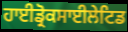
ਹਾਈਡ੍ਰੋਕਸਾਈਲੇਟਿਡ